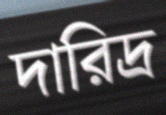
দারিদ্র